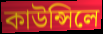
কাউন্সিলে